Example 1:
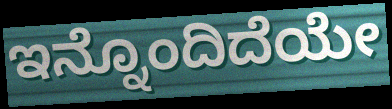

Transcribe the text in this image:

ಇನ್ನೊಂದಿದೆಯೇ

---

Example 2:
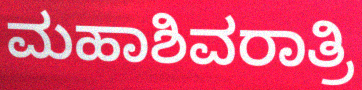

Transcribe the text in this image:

ಮಹಾಶಿವರಾತ್ರಿ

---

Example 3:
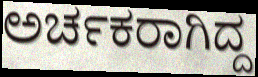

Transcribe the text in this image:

ಅರ್ಚಕರಾಗಿದ್ದ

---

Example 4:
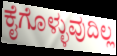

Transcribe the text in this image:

ಕೈಗೊಳ್ಳುವುದಿಲ್ಲ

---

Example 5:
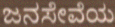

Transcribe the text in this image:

ಜನಸೇವೆಯ